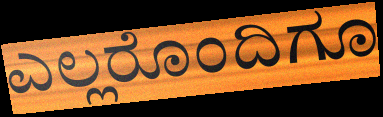
ಎಲ್ಲರೊಂದಿಗೂ